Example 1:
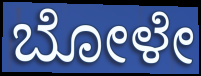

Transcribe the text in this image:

ಬೋಳೇ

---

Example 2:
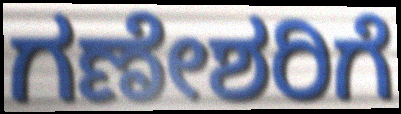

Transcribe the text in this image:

ಗಣೇಶರಿಗೆ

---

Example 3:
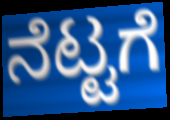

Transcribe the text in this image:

ನೆಟ್ಟಗೆ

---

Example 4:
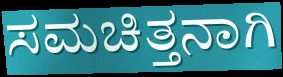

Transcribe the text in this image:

ಸಮಚಿತ್ತನಾಗಿ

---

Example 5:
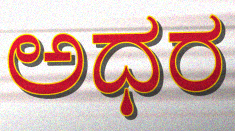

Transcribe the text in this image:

ಅಧರ